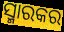
ସ୍ମାରକର